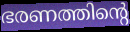
ഭരണത്തിന്റെ